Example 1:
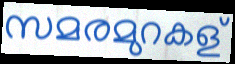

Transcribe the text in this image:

സമരമുറകള്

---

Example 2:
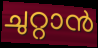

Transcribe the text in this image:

ചുറ്റാൻ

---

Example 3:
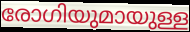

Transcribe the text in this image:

രോഗിയുമായുള്ള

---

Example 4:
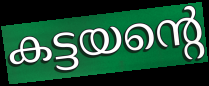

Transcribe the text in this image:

കട്ടയന്റെ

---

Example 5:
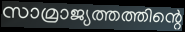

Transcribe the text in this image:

സാമ്രാജ്യത്തത്തിന്റെ